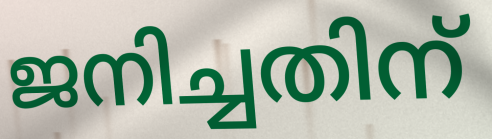
ജനിച്ചതിന്